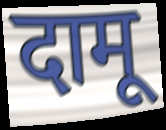
दामू